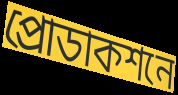
প্রোডাকশনে